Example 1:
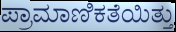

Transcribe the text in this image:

ಪ್ರಾಮಾಣಿಕತೆಯಿತ್ತು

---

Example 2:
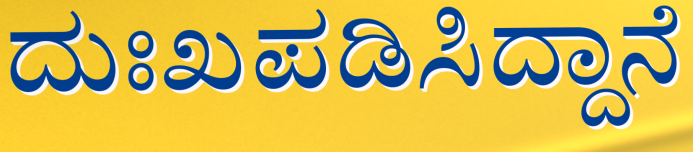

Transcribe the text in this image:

ದುಃಖಪಡಿಸಿದ್ದಾನೆ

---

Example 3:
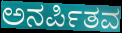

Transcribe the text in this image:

ಅನರ್ಪಿತವ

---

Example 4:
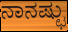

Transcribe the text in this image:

ನಾನಷ್ಟು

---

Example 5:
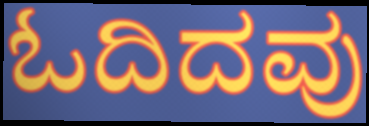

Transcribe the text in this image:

ಓದಿದವು